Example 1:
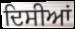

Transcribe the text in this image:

ਦਿਸੀਆਂ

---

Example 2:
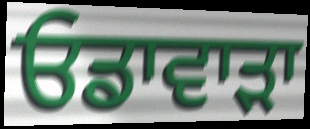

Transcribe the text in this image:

ਓਡਾਵਾੜਾ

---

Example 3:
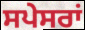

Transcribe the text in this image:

ਸਪੇਸਰਾਂ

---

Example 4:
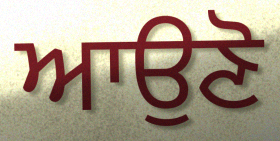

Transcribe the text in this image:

ਆਉਣੋ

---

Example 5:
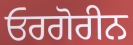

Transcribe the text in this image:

ਓਰਗੋਰੀਨ